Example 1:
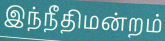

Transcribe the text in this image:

இந்நீதிமன்றம்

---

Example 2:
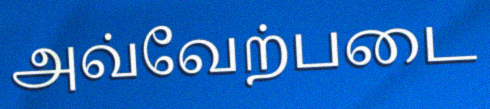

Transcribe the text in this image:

அவ்வேற்படை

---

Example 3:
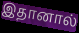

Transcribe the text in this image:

இதானால்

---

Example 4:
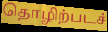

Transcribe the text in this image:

தொழிற்படச்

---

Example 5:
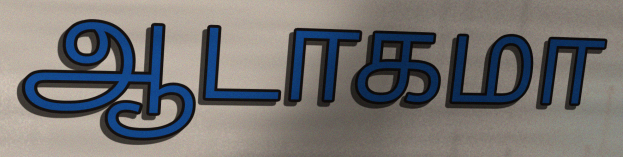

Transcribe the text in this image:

ஆடாகமா